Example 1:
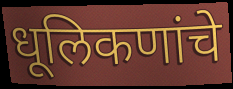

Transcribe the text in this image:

धूलिकणांचे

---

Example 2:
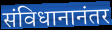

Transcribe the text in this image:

संविधानानंतर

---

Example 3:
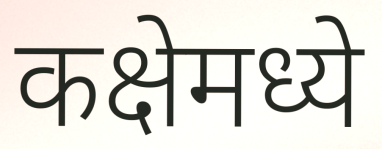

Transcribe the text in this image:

कक्षेमध्ये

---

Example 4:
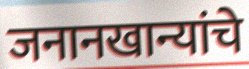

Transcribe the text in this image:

जनानखान्यांचे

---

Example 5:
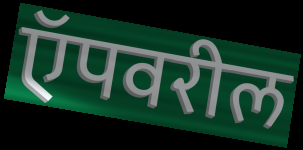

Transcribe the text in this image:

ऍपवरील